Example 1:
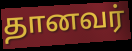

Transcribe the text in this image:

தானவர்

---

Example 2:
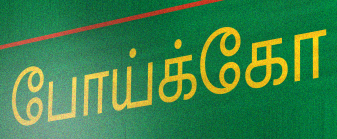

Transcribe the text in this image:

போய்க்கோ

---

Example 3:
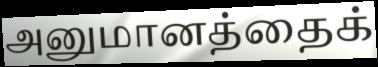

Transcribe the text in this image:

அனுமானத்தைக்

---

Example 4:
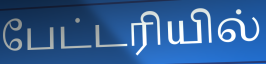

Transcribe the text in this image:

பேட்டரியில்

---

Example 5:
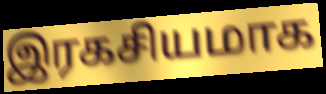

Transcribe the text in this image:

இரகசியமாக